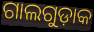
ଗାଲଗୁଡ଼ାକ